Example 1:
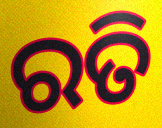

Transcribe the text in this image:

ରତି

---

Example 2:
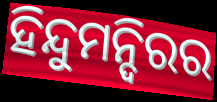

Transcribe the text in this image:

ହିନ୍ଦୁମନ୍ଦିରର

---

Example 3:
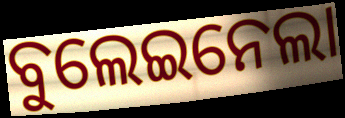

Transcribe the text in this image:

ବୁଲେଇନେଲା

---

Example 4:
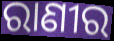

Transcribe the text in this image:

ରାଣୀର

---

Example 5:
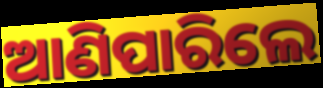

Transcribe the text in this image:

ଆଣିପାରିଲେ